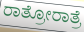
ರಾತ್ರೋರಾತ್ರೆ